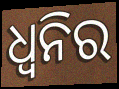
ଧ୍ବନିର